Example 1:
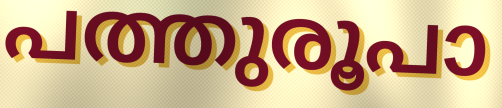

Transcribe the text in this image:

പത്തുരൂപാ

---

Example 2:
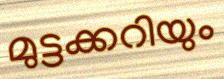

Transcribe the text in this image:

മുട്ടക്കറിയും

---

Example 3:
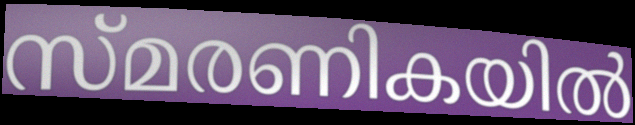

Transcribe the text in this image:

സ്മരണികയിൽ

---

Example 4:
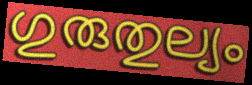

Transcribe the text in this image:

ഗുരുതുല്യം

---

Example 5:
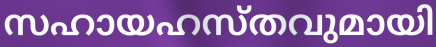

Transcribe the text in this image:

സഹായഹസ്തവുമായി